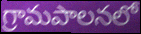
గ్రామపాలనలో